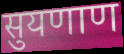
सुयणाण